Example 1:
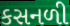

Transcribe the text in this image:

કસનળી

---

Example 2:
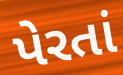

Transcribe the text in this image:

પેરતાં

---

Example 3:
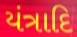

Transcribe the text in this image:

યંત્રાદિ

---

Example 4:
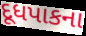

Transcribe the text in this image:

દૂધપાકના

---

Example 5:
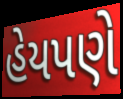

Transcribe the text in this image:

હેયપણે